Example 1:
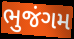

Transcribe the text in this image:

ભુજંગમ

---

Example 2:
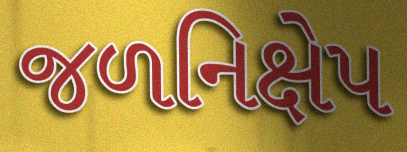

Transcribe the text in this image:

જળનિક્ષેપ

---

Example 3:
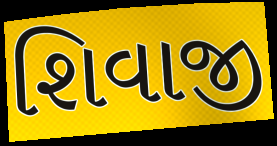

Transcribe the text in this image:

શિવાજી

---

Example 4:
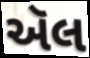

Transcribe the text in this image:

ઍલ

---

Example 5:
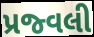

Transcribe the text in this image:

પ્રજ્વલી